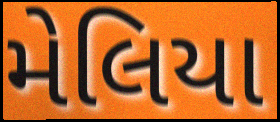
મેલિયા